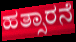
ಹತ್ಸಾರನೆ